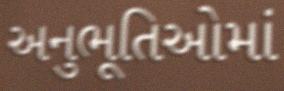
અનુભૂતિઓમાં